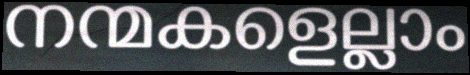
നന്മകളെല്ലാം